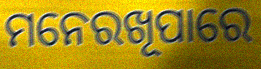
ମନେରଖୂପାରେ